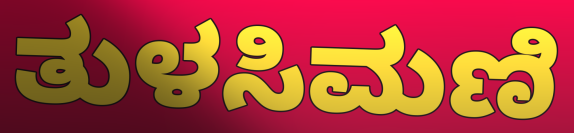
ತುಳಸಿಮಣಿ